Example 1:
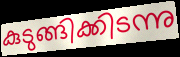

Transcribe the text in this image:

കുടുങ്ങിക്കിടന്നു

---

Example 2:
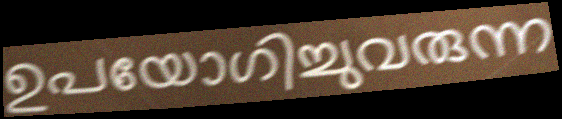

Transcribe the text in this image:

ഉപയോഗിച്ചുവരുന്ന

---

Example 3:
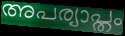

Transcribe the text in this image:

അപര്യാപ്തം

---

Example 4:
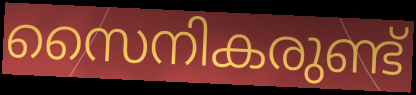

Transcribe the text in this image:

സൈനികരുണ്ട്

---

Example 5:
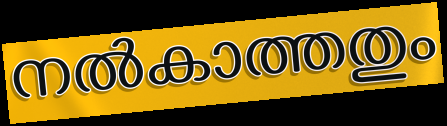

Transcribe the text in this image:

നൽകാത്തതും